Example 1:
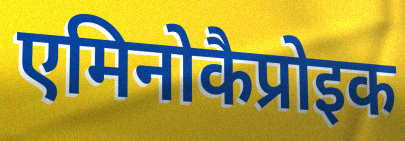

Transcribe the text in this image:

एमिनोकैप्रोइक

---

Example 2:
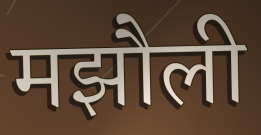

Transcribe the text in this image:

मझौली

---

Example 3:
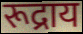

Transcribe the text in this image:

रूद्राय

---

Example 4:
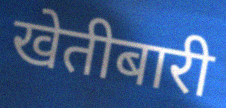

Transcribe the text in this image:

खेतीबारी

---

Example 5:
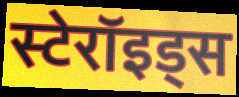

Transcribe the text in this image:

स्टेरॉइड्स